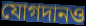
যোগদানও